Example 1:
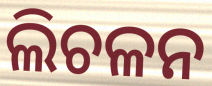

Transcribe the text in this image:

ଲିଚଳନ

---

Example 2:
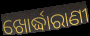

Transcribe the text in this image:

ଖୋର୍ଦ୍ଧାରାଣୀ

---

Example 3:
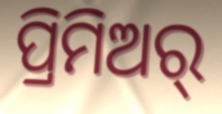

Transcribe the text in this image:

ପ୍ରିମିଅର୍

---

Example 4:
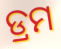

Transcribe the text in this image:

ଡ୍ରମ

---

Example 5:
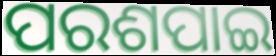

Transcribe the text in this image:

ପରଶପାଇ